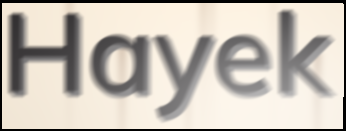
Hayek